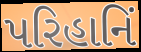
પરિહાનિં